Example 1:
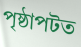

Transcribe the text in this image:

পৃষ্ঠাপটত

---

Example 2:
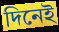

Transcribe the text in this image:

দিনেই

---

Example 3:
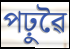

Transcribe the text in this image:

পঢ়ুৱৈ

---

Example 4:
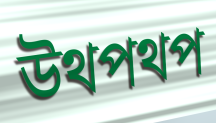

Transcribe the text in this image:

উথপথপ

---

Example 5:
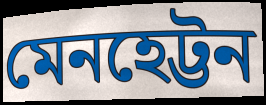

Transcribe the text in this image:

মেনহেট্টন